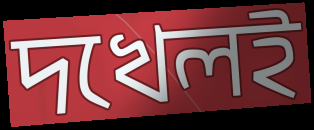
দখেলই